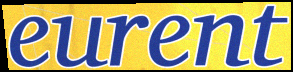
eurent